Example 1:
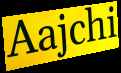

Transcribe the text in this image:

Aajchi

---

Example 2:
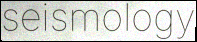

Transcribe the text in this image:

seismology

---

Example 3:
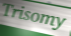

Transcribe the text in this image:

Trisomy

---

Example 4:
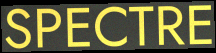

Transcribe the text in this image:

SPECTRE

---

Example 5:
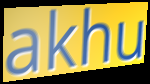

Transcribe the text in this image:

akhu